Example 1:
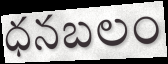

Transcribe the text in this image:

ధనబలం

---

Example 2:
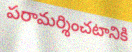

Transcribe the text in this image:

పరామర్శించటానికి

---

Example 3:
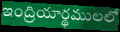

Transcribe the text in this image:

ఇంద్రియార్థములలో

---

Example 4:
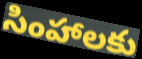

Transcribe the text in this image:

సింహాలకు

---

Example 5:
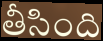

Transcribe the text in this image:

తీసింది